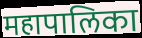
महापालिका